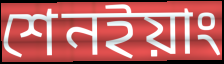
শেনইয়াং